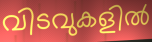
വിടവുകളിൽ